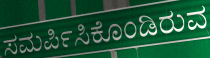
ಸಮರ್ಪಿಸಿಕೊಂಡಿರುವ